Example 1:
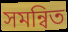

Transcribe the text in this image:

সমন্বিত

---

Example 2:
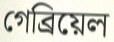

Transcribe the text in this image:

গেব্ৰিয়েল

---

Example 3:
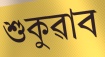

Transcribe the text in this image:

শুকুৱাব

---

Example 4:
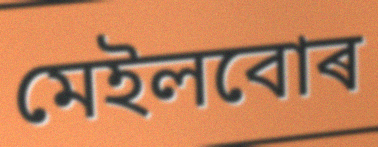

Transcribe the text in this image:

মেইলবোৰ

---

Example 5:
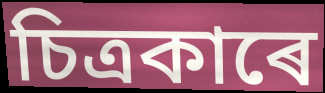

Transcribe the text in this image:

চিত্ৰকাৰে